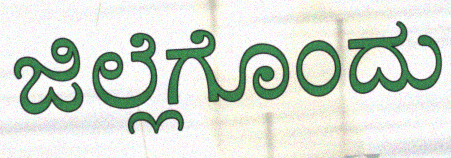
ಜಿಲ್ಲೆಗೊಂದು